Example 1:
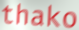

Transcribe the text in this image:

thako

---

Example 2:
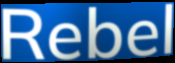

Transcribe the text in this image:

Rebel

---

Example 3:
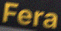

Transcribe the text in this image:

Fera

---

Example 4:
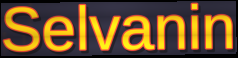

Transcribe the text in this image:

Selvanin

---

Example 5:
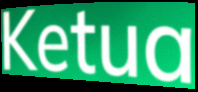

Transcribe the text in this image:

Ketua